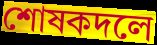
শোষকদলে